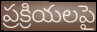
ప్రక్రియలపై